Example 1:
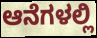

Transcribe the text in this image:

ಆನೆಗಳಲ್ಲಿ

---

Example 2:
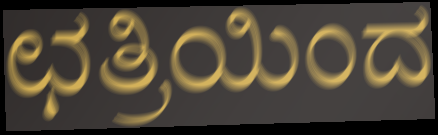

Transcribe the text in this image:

ಛತ್ರಿಯಿಂದ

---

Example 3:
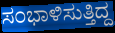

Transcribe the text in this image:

ಸಂಭಾಳಿಸುತ್ತಿದ್ದ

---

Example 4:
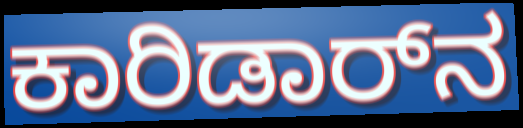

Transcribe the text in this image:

ಕಾರಿಡಾರ್‌ನ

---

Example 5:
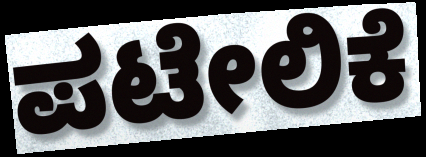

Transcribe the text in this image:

ಪಟೇಲಿಕೆ